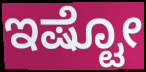
ಇಷ್ಟೋ